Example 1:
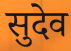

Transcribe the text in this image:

सुदेव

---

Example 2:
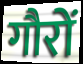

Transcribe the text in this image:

गौरों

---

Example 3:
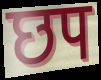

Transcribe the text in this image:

छप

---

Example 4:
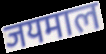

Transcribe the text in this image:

जयमाल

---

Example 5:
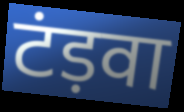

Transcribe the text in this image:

टंड़वा